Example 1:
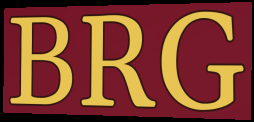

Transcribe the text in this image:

BRG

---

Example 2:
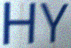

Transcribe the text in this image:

HY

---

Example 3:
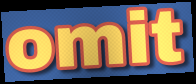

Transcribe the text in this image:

omit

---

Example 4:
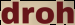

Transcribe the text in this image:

droh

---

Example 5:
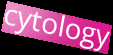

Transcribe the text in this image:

cytology